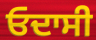
ਓਦਾਸੀ